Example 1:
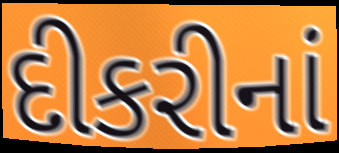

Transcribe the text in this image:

દીકરીનાં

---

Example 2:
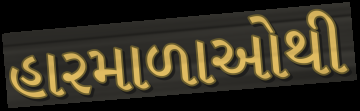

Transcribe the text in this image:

હારમાળાઓથી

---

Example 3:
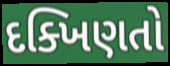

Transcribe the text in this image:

દક્ખિણતો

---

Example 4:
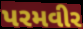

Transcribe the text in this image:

પરમવીર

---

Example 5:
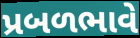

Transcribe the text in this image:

પ્રબળભાવે